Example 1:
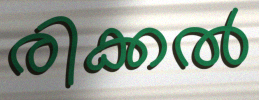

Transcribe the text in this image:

രിക്കൽ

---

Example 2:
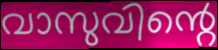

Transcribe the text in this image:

വാസുവിന്റെ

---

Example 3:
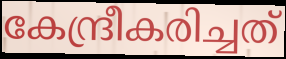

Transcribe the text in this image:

കേന്ദ്രീകരിച്ചത്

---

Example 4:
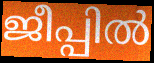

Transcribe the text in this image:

ജീപ്പിൽ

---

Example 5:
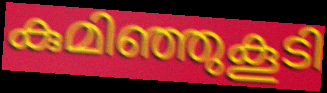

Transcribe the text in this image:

കുമിഞ്ഞുകൂടി